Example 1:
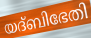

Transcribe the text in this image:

യദ്ബിഭേതി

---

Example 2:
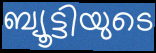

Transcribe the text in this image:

ബ്യൂട്ടിയുടെ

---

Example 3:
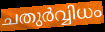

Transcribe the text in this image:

ചതുർവ്വിധം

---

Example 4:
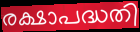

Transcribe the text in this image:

രക്ഷാപദ്ധതി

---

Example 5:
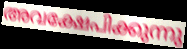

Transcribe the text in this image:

അവക്ഷേപിക്കുന്നു